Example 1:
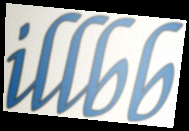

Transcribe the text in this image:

illbb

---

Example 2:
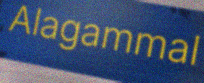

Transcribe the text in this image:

Alagammal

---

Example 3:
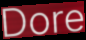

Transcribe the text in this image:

Dore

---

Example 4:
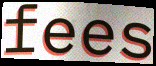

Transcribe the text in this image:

fees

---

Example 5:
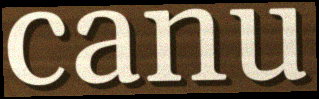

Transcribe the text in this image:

canu